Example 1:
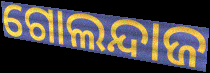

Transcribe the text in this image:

ଗୋଲନ୍ଦାଜ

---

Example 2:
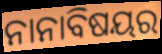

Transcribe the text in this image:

ନାନାବିଷୟର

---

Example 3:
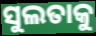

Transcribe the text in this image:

ସୁଲତାକୁ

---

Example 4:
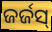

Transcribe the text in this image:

ଜର୍ଜସ୍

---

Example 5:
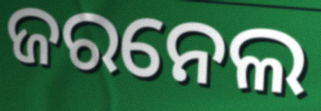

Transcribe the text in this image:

ଜରନେଲ